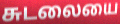
சுடலையை